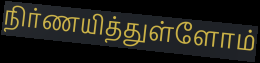
நிர்ணயித்துள்ளோம்